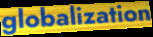
globalization